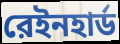
রেইনহার্ড